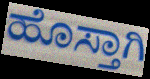
ಹೊಸ್ತಾಗಿ